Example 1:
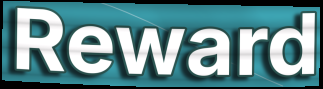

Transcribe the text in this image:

Reward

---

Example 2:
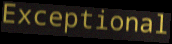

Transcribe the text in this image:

Exceptional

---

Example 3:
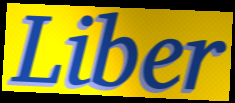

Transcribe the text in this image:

Liber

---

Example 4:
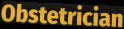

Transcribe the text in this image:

Obstetrician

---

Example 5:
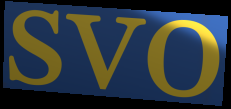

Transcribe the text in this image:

svo